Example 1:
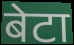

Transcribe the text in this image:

बेटा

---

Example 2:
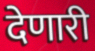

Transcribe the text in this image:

देणारी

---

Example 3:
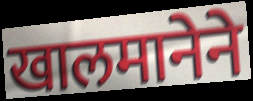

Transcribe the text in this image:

खालमानेने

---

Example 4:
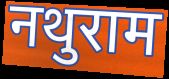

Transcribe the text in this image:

नथुराम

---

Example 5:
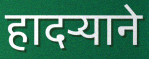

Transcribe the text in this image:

हादऱ्याने